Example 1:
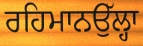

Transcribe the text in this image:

ਰਹਿਮਾਨਉੱਲ੍ਹਾ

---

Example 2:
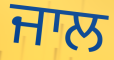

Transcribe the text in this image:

ਜਾਲ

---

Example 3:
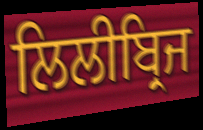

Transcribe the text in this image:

ਲਿਲੀਬ੍ਰਿਜ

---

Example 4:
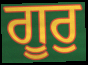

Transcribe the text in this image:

ਗੂਰੁ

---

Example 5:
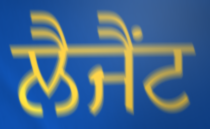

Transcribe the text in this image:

ਲੈਜੈਂਟ